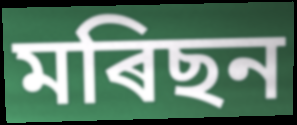
মৰিছন